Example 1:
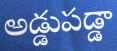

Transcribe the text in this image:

అడ్డుపడ్డా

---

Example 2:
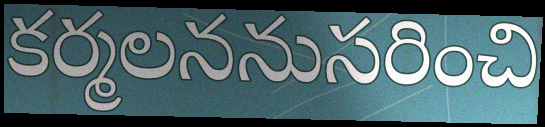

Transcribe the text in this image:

కర్మలననుసరించి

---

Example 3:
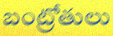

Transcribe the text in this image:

బంట్రోతులు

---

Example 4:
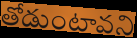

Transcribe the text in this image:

తోడుంటావని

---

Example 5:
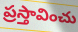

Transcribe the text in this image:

ప్రస్తావించు